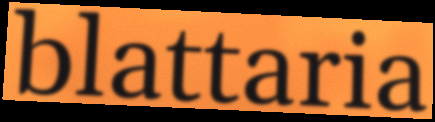
blattaria